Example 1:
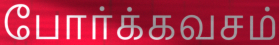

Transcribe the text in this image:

போர்க்கவசம்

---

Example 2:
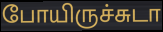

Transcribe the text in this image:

போயிருச்சுடா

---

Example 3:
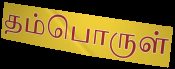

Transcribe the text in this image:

தம்பொருள்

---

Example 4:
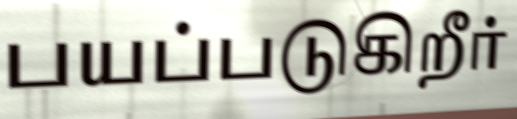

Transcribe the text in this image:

பயப்படுகிறீர்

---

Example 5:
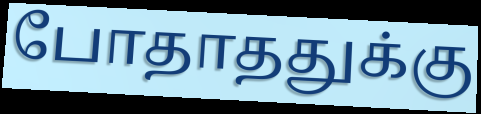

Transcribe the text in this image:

போதாததுக்கு